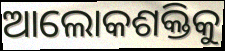
ଆଲୋକଶକ୍ତିକୁ